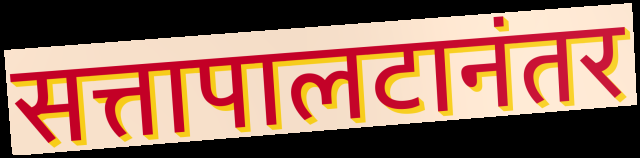
सत्तापालटानंतर